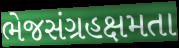
ભેજસંગ્રહક્ષમતા